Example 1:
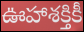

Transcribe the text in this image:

ఊహాశక్తికీ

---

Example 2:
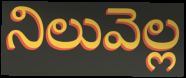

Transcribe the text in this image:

నిలువెల్ల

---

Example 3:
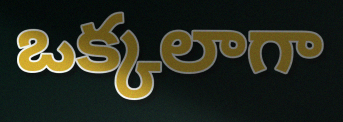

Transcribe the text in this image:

ఒక్కలాగా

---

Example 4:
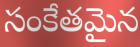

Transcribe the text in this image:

సంకేతమైన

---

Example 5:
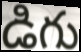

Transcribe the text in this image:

డిగు